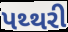
પથ્થરી